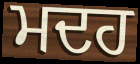
ਮਦਹ